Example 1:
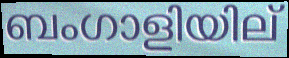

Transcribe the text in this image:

ബംഗാളിയില്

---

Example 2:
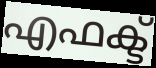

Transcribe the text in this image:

എഫക്ട്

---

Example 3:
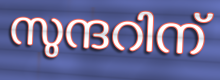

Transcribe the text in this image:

സുന്ദറിന്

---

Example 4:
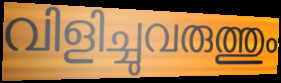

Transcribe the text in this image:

വിളിച്ചുവരുത്തും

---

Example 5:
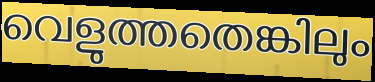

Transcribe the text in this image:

വെളുത്തതെങ്കിലും